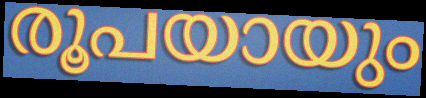
രൂപയായും